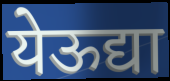
येऊद्या